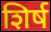
शिर्ष